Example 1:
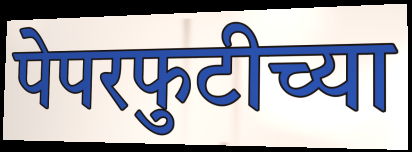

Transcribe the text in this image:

पेपरफुटीच्या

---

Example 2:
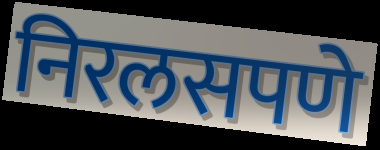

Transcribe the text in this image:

निरलसपणे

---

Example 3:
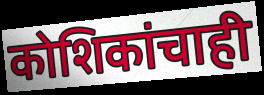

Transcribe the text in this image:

कोशिकांचाही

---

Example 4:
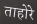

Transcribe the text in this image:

ताहोरे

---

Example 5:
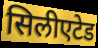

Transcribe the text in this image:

सिलीएटेड